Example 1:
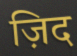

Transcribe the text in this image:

ज़िद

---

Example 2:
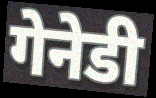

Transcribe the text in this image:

गेनेडी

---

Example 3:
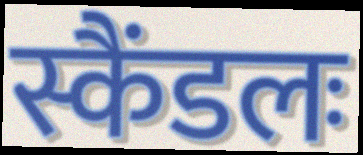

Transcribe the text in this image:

स्कैंडलः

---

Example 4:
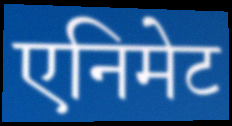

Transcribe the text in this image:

एनिमेट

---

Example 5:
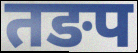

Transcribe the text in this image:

तङप